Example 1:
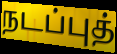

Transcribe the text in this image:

நடப்புத்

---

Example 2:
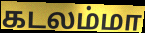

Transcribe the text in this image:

கடலம்மா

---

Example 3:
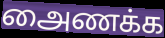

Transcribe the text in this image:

அைணக்க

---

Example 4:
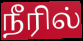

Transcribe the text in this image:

நீரில்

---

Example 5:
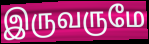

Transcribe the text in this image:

இருவருமே